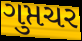
ગુપ્તચર